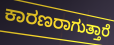
ಕಾರಣರಾಗುತ್ತಾರೆ